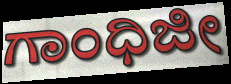
ಗಾಂಧಿಜೀ